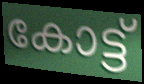
കോട്ട്